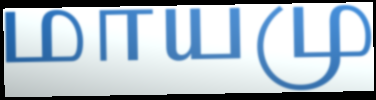
மாயமு